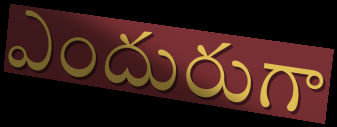
ఎందురుగా